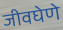
जीवघेणे